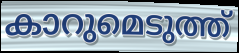
കാറുമെടുത്ത്